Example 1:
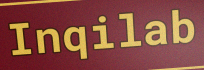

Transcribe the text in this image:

Inqilab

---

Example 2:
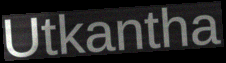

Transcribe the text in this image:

Utkantha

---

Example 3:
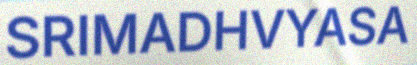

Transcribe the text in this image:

SRIMADHVYASA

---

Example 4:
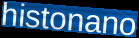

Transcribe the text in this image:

histonano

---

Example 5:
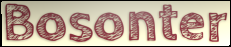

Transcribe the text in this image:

Bosonter